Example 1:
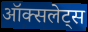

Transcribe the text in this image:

ऑक्सलेट्स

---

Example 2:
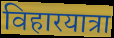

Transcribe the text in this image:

विहारयात्रा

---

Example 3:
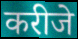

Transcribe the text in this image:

करीजे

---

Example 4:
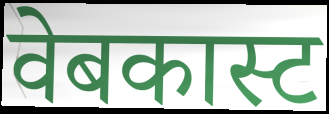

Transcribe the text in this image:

वेबकास्ट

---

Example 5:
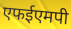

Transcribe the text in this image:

एफईएमपी